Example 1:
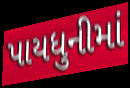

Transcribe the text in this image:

પાયધુનીમાં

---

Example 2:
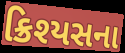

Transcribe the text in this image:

ક્રિશ્યસના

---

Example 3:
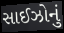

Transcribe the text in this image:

સાઈઝોનું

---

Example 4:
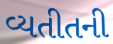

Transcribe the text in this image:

વ્યતીતની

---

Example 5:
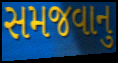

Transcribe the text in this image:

સમજવાનુ